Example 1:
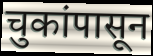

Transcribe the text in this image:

चुकांपासून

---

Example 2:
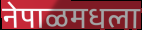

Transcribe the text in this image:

नेपाळमधला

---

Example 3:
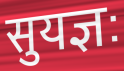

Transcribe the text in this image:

सुयज्ञः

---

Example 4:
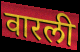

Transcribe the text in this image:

वारली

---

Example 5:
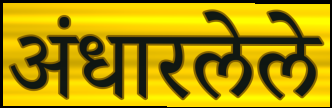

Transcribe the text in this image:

अंधारलेले